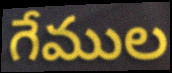
గేముల